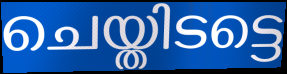
ചെയ്തിടട്ടെ